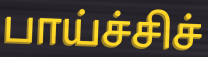
பாய்ச்சிச்